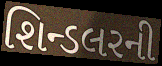
શિન્ડલરની